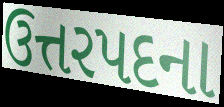
ઉત્તરપદના